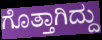
ಗೊತ್ತಾಗಿದ್ದು